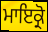
ਮਾਇਕ੍ਰੋ